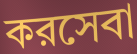
করসেবা